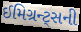
ઈમિગ્રન્ટ્સની